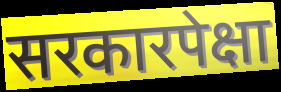
सरकारपेक्षा